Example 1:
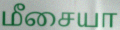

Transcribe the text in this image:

மீசையா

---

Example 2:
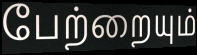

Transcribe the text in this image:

பேற்றையும்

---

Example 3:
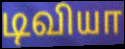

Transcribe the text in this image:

டிவியா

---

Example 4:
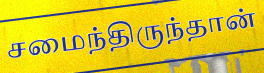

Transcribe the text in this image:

சமைந்திருந்தான்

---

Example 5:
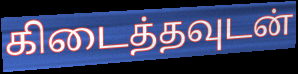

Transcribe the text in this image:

கிடைத்தவுடன்